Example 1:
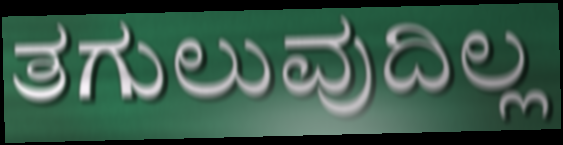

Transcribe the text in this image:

ತಗುಲುವುದಿಲ್ಲ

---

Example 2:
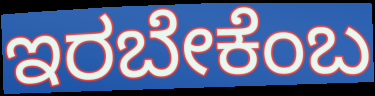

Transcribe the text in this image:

ಇರಬೇಕೆಂಬ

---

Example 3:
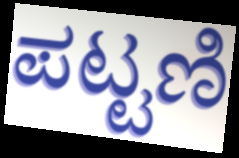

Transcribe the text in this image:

ಪಟ್ಟಣಿ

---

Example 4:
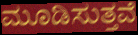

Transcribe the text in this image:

ಮೂಡಿಸುತ್ತವೆ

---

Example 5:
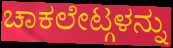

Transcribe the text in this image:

ಚಾಕಲೇಟ್ಗಳನ್ನು